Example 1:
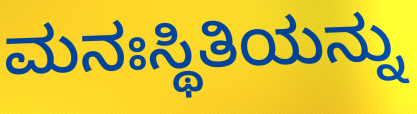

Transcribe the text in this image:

ಮನಃಸ್ಥಿತಿಯನ್ನು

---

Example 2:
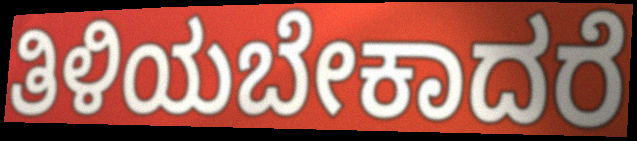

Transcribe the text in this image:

ತಿಳಿಯಬೇಕಾದರೆ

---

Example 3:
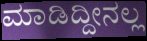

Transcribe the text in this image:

ಮಾಡಿದ್ದೀನಲ್ಲ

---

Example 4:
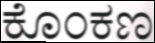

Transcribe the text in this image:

ಕೊಂಕಣ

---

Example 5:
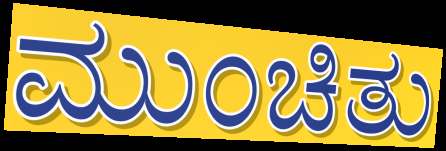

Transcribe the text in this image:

ಮುಂಚಿತು